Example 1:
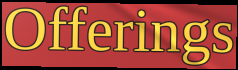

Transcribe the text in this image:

Offerings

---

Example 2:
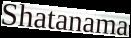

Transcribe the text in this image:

Shatanama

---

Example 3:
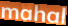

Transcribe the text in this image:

mahal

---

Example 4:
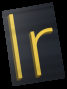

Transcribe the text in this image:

lr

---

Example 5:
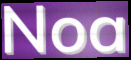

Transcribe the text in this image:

Noa